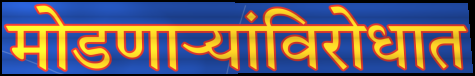
मोडणाऱ्यांविरोधात